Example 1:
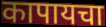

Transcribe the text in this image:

कापायचा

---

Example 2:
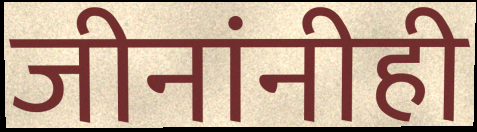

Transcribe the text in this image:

जीनांनीही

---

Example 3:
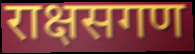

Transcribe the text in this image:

राक्षसगण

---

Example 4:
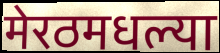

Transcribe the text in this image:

मेरठमधल्या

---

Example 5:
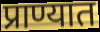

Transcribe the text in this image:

प्राण्यात